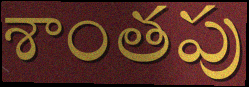
శాంతపు